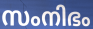
സംനിഭം